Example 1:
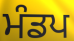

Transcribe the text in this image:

ਮੰਡਪ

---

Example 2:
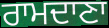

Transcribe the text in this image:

ਰਾਮਦਾਣਾ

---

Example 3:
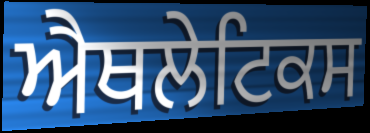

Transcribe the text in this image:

ਐਥਲੇਟਿਕਸ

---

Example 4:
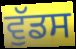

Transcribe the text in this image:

ਵੁੱਡਸ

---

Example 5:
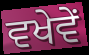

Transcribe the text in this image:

ਵਖੇਵੇਂ